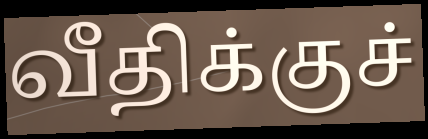
வீதிக்குச்